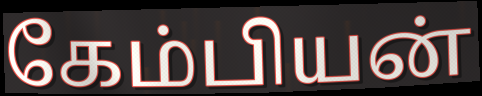
கேம்பியன்